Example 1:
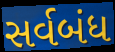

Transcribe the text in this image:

સર્વબંધ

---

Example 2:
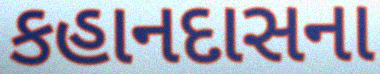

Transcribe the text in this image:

કહાનદાસના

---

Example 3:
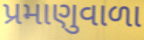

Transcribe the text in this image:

પ્રમાણુવાળા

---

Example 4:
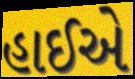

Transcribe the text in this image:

હાઈએ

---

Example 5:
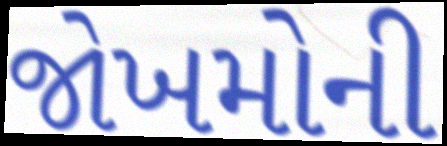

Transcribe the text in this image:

જોખમોની